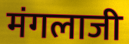
मंगलाजी